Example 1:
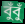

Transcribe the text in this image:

বুঁবুঁ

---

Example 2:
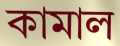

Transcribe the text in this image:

কামাল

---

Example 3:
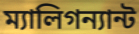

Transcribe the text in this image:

ম্যালিগন্যান্ট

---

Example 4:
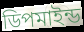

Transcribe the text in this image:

ডিপমাইন্ড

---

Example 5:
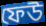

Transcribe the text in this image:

ফেউ